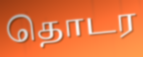
தொடர